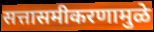
सत्तासमीकरणामुळे